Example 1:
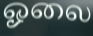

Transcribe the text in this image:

ஓலை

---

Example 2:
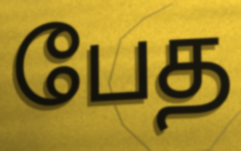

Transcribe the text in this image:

பேத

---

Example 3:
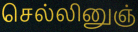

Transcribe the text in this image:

செல்லினுஞ்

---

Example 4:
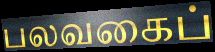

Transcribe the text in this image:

பலவகைப்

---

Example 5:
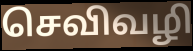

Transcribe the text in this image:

செவிவழி